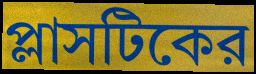
প্লাসটিকের